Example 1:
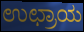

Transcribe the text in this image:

ಉಛ್ರಾಯ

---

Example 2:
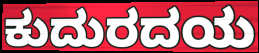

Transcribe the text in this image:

ಕುದುರದಯ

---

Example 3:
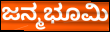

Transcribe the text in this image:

ಜನ್ಮಭೂಮಿ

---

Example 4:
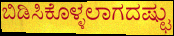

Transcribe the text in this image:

ಬಿಡಿಸಿಕೊಳ್ಳಲಾಗದಷ್ಟು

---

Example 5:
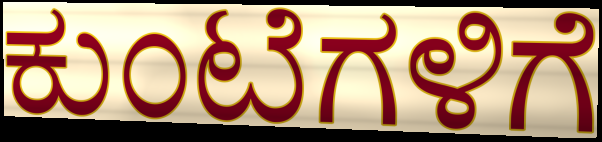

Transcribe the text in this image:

ಕುಂಟೆಗಳಿಗೆ